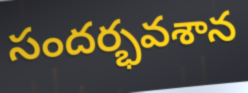
సందర్భవశాన